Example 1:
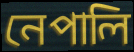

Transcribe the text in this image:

নেপালি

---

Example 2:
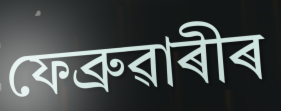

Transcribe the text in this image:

ফেব্ৰুৱাৰীৰ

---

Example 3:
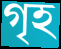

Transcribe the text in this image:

গৃহ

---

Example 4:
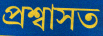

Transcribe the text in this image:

প্ৰশ্বাসত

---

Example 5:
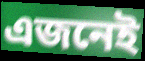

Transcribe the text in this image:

এজনেই